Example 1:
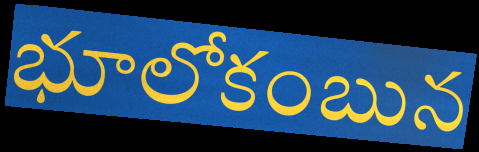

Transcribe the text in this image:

భూలోకంబున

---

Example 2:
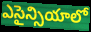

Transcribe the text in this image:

ఎసైన్సియాలో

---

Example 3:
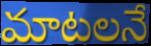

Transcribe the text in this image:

మాటలనే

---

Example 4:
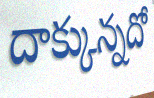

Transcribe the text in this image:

దాక్కున్నదో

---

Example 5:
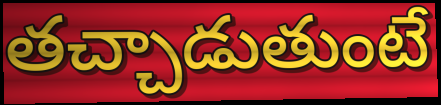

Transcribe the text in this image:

తచ్చాడుతుంటే